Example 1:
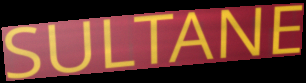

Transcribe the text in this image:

SULTANE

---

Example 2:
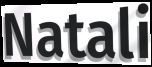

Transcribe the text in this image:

Natali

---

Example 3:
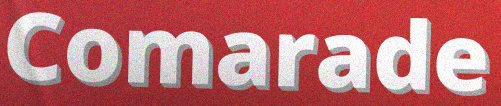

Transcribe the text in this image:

Comarade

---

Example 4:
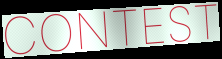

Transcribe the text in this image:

CONTEST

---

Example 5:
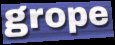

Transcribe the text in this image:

grope